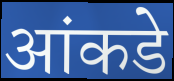
आंकडे